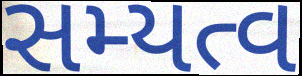
સમ્યત્વ